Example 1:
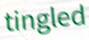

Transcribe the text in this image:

tingled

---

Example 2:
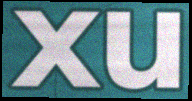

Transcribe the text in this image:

xu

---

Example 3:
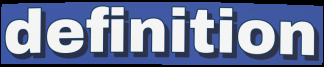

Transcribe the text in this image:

definition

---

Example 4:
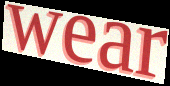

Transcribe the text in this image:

wear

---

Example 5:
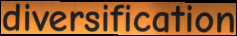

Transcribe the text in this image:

diversification